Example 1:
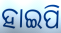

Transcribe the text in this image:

ହାଇପି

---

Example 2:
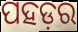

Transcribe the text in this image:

ପହଡ଼ର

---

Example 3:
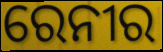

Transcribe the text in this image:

ରେନୀର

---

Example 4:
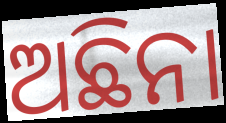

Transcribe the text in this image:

ଅଛିନା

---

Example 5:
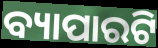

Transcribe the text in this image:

ବ୍ୟାପାରଟି